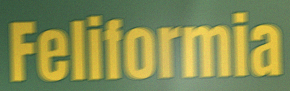
Feliformia